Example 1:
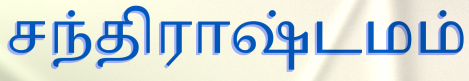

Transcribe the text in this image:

சந்திராஷ்டமம்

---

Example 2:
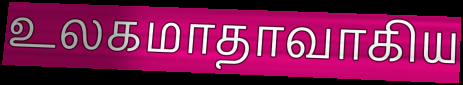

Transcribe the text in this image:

உலகமாதாவாகிய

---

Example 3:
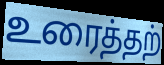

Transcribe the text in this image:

உரைத்தற்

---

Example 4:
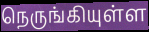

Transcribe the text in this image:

நெருங்கியுள்ள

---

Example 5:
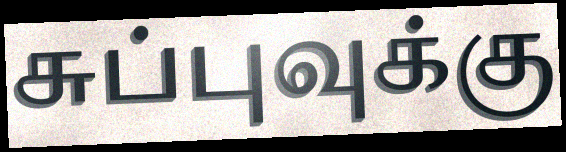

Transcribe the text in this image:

சுப்புவுக்கு